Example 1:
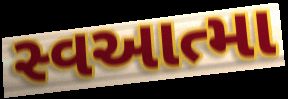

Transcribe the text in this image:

સ્વઆત્મા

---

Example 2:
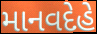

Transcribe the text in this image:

માનવદેહે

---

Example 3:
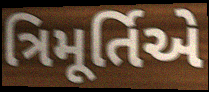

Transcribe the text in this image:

ત્રિમૂર્તિએ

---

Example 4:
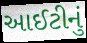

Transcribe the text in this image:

આઈટીનું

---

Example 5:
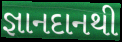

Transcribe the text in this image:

જ્ઞાનદાનથી